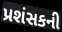
પ્રશંસકની